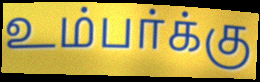
உம்பர்க்கு